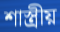
শাস্ত্ৰীয়